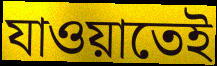
যাওয়াতেই